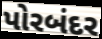
પોરબંદર